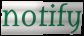
notify